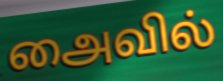
அைவில்